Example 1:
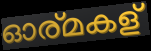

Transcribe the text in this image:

ഓര്മകള്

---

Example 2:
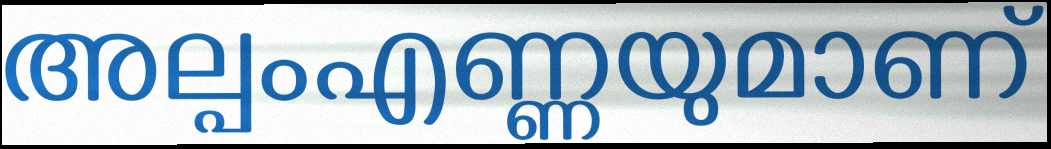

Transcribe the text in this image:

അല്പംഎണ്ണയുമാണ്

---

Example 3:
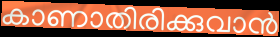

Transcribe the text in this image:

കാണാതിരിക്കുവാൻ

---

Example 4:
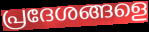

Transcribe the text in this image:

പ്രദേശങ്ങളെ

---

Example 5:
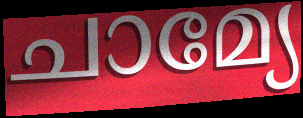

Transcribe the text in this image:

ചാമ്യേ